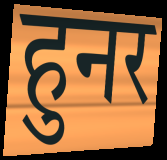
हुनर